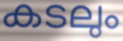
കടലും